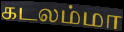
கடலம்மா